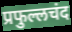
प्रफुल्लचंद